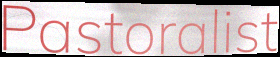
Pastoralist